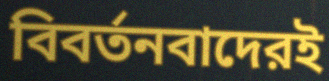
বিবর্তনবাদেরই